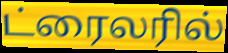
ட்ரைலரில்